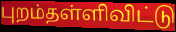
புறம்தள்ளிவிட்டு